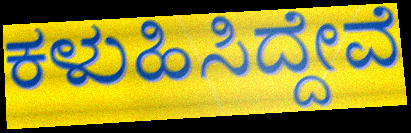
ಕಳುಹಿಸಿದ್ದೇವೆ